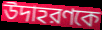
উদাহরণকে